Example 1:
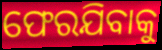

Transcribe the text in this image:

ଫେରଯିବାକୁ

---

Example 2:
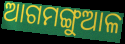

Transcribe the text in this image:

ଆଗମଙ୍ଗୁଆଳ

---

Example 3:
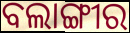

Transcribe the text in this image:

ବଲାଙ୍ଗୀର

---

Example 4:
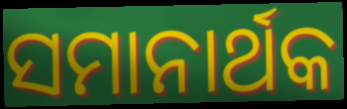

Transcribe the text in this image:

ସମାନାର୍ଥକ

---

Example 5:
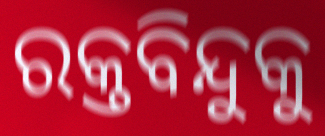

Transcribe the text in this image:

ରକ୍ତବିନ୍ଦୁକୁ